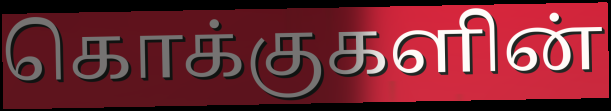
கொக்குகளின்